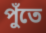
পুঁতে